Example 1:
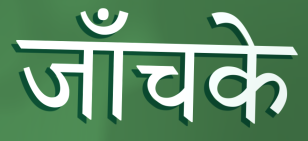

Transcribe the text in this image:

जाँचके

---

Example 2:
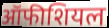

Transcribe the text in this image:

ऑफीशियल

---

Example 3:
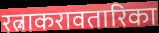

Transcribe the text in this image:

रत्नाकरावतारिका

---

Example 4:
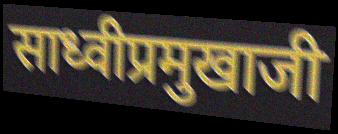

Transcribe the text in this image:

साध्वीप्रमुखाजी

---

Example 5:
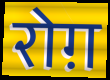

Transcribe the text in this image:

रोग़